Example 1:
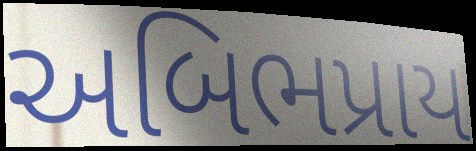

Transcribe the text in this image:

અબિભપ્રાય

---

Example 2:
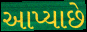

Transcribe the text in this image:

આપ્યાછે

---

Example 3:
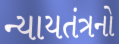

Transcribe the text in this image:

ન્યાયતંત્રનો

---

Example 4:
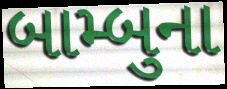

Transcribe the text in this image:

બામ્બુના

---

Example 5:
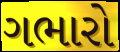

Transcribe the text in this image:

ગભારો